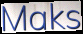
Maks